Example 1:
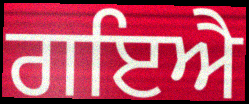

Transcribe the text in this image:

ਗਇਐ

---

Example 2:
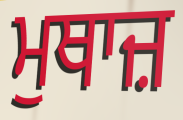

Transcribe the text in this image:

ਮੁਥਾਜ਼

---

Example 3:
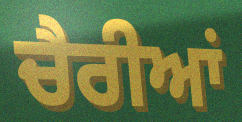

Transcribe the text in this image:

ਚੈਰੀਆਂ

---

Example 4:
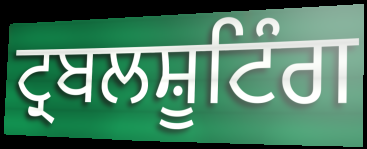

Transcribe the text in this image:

ਟ੍ਰਬਲਸ਼ੂਟਿੰਗ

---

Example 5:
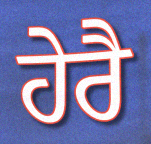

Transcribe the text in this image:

ਹੇਰੈ